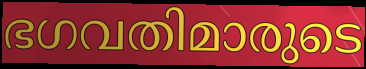
ഭഗവതിമാരുടെ